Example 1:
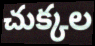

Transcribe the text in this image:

చుక్కల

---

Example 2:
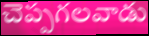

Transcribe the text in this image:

చెప్పగలవాడు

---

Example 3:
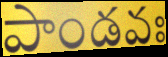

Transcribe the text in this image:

పాండవః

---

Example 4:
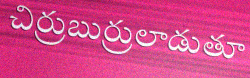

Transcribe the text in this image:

చిర్రుబుర్రులాడుతూ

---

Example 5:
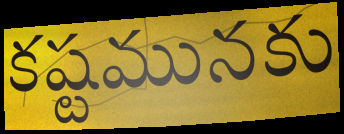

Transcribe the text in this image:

కష్టమునకు